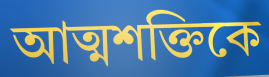
আত্মশক্তিকে